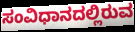
ಸಂವಿಧಾನದಲ್ಲಿರುವ